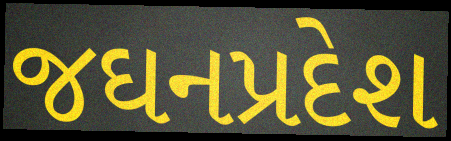
જઘનપ્રદેશ